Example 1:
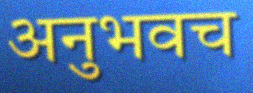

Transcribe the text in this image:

अनुभवच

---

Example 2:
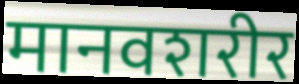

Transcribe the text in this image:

मानवशरीर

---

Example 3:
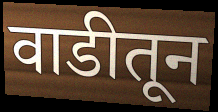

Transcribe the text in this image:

वाडीतून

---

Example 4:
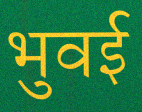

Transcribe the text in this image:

भुवई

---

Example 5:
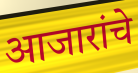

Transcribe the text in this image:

आजारांचे